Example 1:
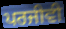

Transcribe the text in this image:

ਪਰਜੀਵੀ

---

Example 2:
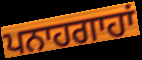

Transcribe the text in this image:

ਪਨਾਹਗਾਹਾਂ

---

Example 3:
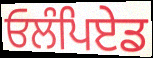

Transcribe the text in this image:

ਓਲੰਪਿਏਡ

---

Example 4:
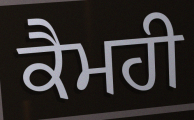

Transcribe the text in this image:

ਕੈਮਹੀ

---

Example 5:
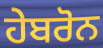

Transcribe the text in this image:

ਹੇਬਰੋਨ